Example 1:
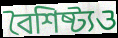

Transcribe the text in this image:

বৈশিষ্ট্যও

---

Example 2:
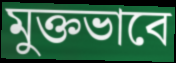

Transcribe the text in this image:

মুক্তভাবে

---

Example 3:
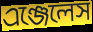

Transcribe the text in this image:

এঞ্জেলেস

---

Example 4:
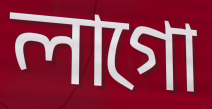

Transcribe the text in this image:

লাগো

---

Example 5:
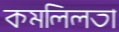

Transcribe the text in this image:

কমলিলতা